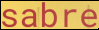
sabre